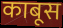
काबूस